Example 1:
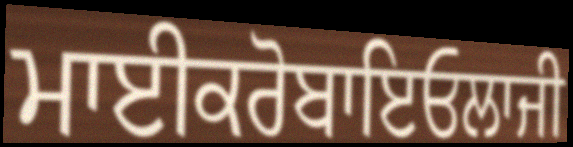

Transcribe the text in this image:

ਮਾਈਕਰੋਬਾਇਓਲਾਜੀ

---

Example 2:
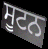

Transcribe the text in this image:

ਸੂਟਨ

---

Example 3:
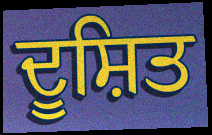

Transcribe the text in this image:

ਦੂਸ਼ਿਤ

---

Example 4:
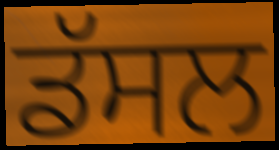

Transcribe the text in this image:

ਡੱਸਲ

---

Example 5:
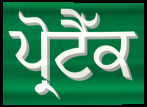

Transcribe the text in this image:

ਪ੍ਰੋਟੈੱਕ